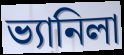
ভ্যানিলা